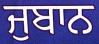
ਜੁਬਾਨ